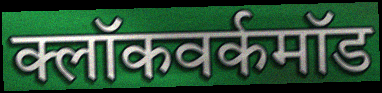
क्लॉकवर्कमॉड